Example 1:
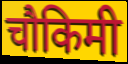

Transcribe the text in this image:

चौकिमी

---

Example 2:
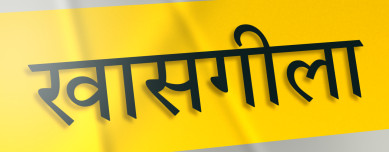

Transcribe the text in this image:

खासगीला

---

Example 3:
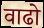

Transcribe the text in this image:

वाढो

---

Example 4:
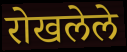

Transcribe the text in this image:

रोखलेले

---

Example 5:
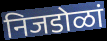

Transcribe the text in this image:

निजडोळां